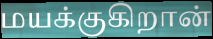
மயக்குகிறான்